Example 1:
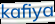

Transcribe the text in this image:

kafiya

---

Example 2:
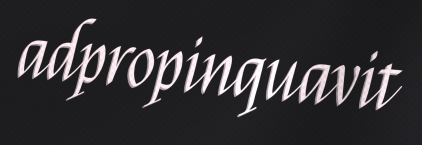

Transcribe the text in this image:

adpropinquavit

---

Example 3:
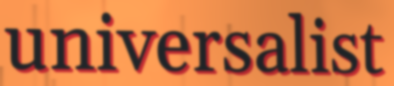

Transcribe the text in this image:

universalist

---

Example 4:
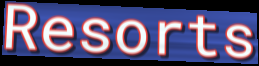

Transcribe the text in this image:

Resorts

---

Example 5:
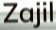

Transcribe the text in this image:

Zajil